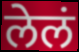
लेलं